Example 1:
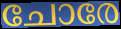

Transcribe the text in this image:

ചോരേ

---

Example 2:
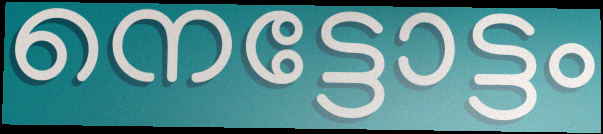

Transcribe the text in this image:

നെട്ടോട്ടം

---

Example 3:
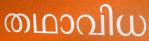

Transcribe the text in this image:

തഥാവിധ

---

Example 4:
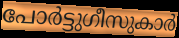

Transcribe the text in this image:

പോർട്ടുഗീസുകാർ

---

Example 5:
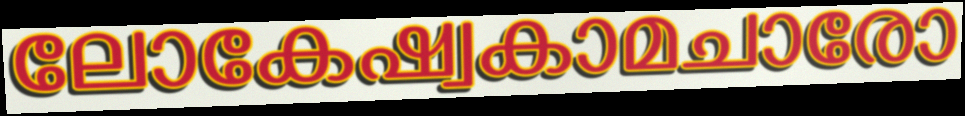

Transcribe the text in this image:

ലോകേഷ്വകാമചാരോ